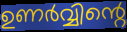
ഉണർവ്വിന്റെ